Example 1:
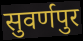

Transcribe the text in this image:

सुवर्णपुर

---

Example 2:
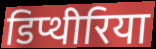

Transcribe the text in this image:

डिप्थीरिया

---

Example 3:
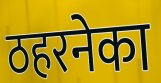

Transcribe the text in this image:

ठहरनेका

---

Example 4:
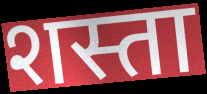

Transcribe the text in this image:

शस्ता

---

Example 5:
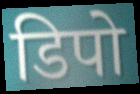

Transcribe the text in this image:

डिपो